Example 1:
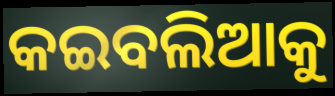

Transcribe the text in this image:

କଇବଲିଆକୁ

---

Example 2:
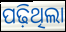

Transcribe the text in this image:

ପଢ଼ିଥିଲା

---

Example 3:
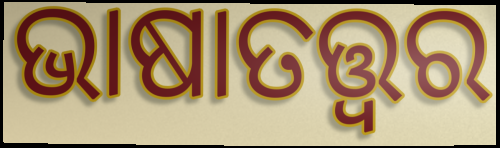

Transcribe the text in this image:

ଭାଷାତତ୍ତ୍ଵର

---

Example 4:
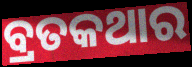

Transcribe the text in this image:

ବ୍ରତକଥାର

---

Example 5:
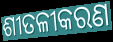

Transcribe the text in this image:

ଶୀତଳୀକରଣ